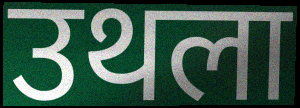
उथला